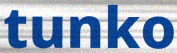
tunko